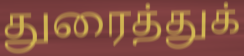
துரைத்துக்